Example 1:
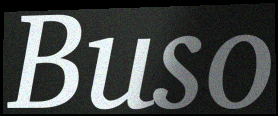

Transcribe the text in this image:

Buso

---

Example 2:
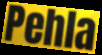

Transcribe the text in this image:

Pehla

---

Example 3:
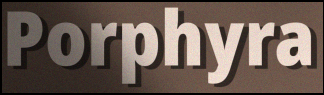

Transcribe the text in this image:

Porphyra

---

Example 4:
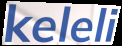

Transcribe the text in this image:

keleli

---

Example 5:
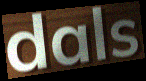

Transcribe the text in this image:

dals